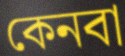
কেনবা